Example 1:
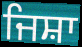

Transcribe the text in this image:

ਜਿਸ਼ਾ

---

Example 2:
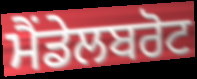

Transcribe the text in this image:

ਮੈਂਡੇਲਬਰੋਟ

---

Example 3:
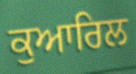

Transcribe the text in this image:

ਕੁਆਰਿਲ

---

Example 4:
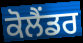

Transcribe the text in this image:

ਕੋਲੈਂਡਰ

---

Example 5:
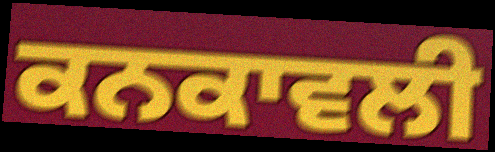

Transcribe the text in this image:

ਕਨਕਾਵਲੀ